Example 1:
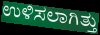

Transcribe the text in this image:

ಉಳಿಸಲಾಗಿತ್ತು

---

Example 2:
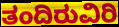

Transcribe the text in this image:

ತಂದಿರುವಿರಿ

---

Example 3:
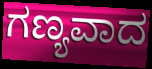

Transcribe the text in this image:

ಗಣ್ಯವಾದ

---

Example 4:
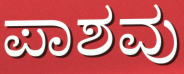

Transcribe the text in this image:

ಪಾಶವು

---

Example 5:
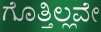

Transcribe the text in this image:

ಗೊತ್ತಿಲ್ಲವೇ